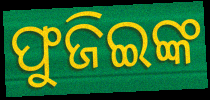
ଫୁଜିଇଙ୍କ